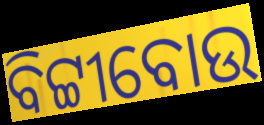
ବିଟ୍ଟୀବୋଉ